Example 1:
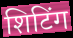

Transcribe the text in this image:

शिटिंग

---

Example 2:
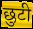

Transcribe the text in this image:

छुटी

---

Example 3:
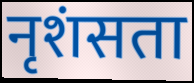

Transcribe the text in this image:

नृशंसता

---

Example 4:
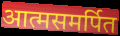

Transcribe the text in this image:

आत्मसमर्पित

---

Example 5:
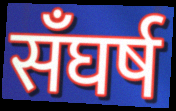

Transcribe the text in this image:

सँघर्ष